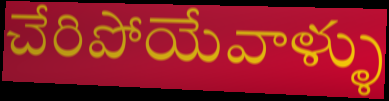
చేరిపోయేవాళ్ళు